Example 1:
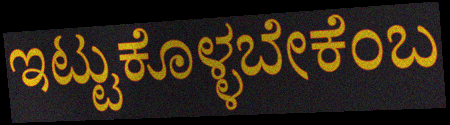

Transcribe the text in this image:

ಇಟ್ಟುಕೊಳ್ಳಬೇಕೆಂಬ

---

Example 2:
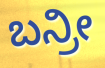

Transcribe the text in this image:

ಬನ್ರೀ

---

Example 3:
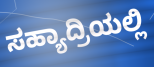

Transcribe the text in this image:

ಸಹ್ಯಾದ್ರಿಯಲ್ಲಿ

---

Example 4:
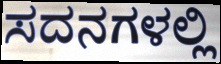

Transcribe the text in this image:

ಸದನಗಳಲ್ಲಿ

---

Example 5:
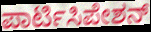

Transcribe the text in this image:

ಪಾರ್ಟಿಸಿಪೇಶನ್